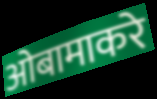
ओबामाकरे